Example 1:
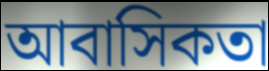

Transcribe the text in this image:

আবাসিকতা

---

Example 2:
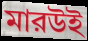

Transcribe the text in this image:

মারউই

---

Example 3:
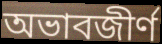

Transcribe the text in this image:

অভাবজীর্ণ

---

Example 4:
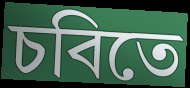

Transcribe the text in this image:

চবিতে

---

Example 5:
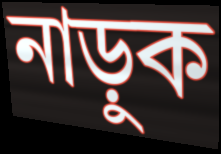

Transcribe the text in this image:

নাড়ুক